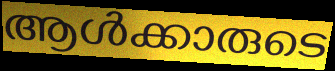
ആൾക്കാരുടെ